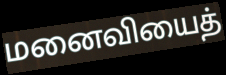
மனைவியைத்